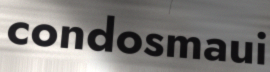
condosmaui